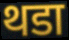
थडा